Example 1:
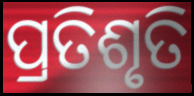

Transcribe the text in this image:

ପ୍ରତିଶୃତି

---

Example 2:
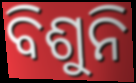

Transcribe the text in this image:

ବିଶୁନି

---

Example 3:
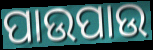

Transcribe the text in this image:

ପାଉପାଉ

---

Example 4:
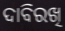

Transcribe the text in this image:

ଦାବିରଖି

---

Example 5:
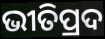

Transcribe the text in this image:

ଭୀତିପ୍ରଦ